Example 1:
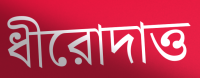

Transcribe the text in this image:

ধীরোদাত্ত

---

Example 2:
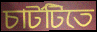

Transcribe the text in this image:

চার্টটিতে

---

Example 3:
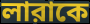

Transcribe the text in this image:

লারাকে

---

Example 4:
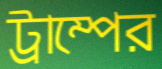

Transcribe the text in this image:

ট্রাম্পের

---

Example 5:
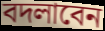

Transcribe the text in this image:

বদলাবেন